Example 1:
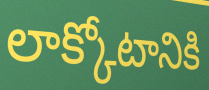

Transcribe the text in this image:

లాక్కోటానికి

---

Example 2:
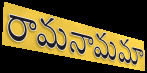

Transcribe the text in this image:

రామనామమా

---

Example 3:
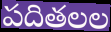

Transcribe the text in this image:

పదితలల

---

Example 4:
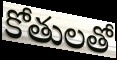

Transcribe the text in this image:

కోతులతో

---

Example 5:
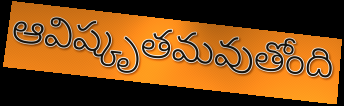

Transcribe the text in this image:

ఆవిష్కృతమవుతోంది